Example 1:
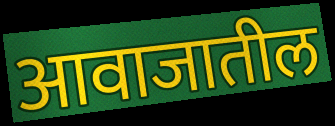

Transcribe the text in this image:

आवाजातील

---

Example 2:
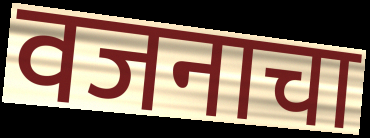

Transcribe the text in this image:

वजनाचा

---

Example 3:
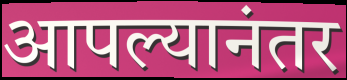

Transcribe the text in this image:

आपल्यानंतर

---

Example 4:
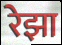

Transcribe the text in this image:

रेझा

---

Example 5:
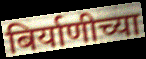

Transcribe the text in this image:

बिर्याणीच्या